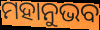
ମହାନୁଭବ